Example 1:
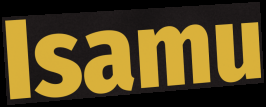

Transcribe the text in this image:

Isamu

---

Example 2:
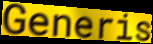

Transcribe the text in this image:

Generis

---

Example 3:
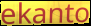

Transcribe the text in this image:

ekanto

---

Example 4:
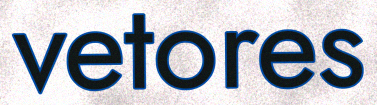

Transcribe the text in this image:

vetores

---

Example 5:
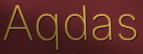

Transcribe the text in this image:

Aqdas